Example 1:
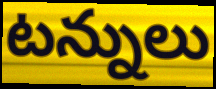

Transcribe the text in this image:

టన్నులు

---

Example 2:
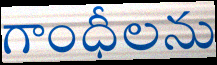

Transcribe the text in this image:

గాంధీలను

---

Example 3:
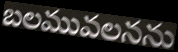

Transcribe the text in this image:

బలమువలనను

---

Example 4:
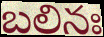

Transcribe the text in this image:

బలినః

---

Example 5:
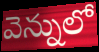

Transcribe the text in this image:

వెన్నులో